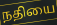
நதியை